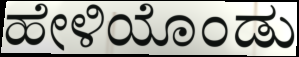
ಹೇಳಿಯೊಂಡು